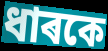
ধাৰকে